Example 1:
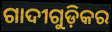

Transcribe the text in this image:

ଗାଦୀଗୁଡ଼ିକର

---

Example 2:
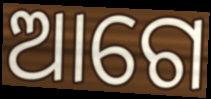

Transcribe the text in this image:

ଆଗେ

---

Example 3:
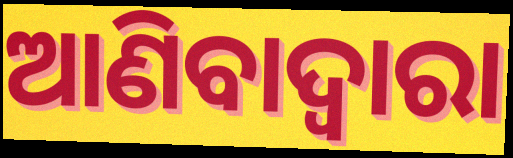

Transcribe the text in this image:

ଆଣିବାଦ୍ୱାରା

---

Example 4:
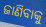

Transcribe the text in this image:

ଜାଣିବାକୁ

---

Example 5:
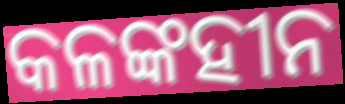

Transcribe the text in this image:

କଳଙ୍କହୀନ